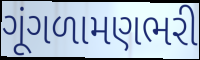
ગૂંગળામણભરી